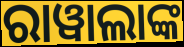
ରାୱାଲାଙ୍କ